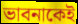
ভাবনাকেই